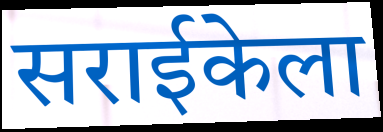
सराईकेला